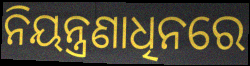
ନିୟନ୍ତ୍ରଣାଧିନରେ